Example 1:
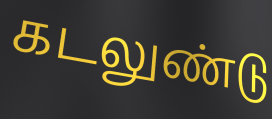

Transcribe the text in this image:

கடலுண்டு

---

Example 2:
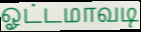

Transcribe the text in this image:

ஓட்டமாவடி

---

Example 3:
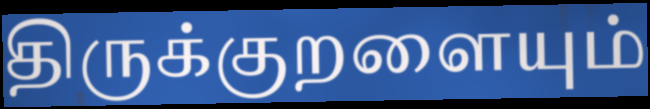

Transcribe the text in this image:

திருக்குறளையும்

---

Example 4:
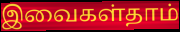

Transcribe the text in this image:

இவைகள்தாம்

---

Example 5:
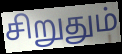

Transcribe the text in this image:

சிறுதும்